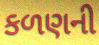
કળણની